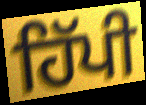
ਹਿੱਪੀ